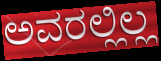
ಅವರಲ್ಲಿಲ್ಲ